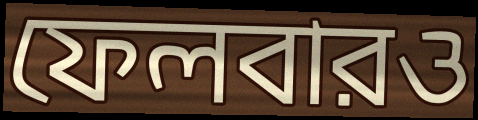
ফেলবারও